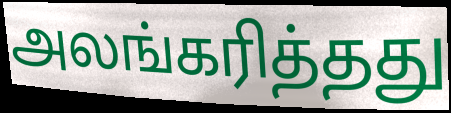
அலங்கரித்தது